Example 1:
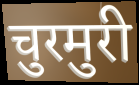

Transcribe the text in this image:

चुरमुरी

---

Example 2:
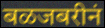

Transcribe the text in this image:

बळजबरीनं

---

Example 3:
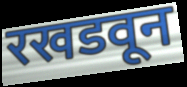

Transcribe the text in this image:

रखडवून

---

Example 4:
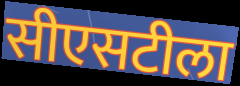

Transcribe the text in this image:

सीएसटीला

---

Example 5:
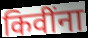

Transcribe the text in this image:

किवींना